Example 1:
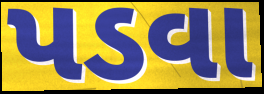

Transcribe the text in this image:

પડવા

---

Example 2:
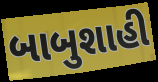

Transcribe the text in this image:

બાબુશાહી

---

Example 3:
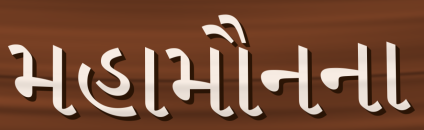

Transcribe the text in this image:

મહામૌનના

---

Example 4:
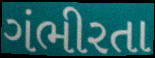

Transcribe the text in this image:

ગંભીરતા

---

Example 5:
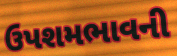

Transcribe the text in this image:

ઉપશમભાવની